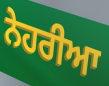
ਨੇਹਰੀਆ